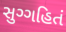
સુગ્ગહિતં